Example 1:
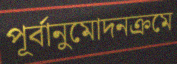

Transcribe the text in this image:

পূর্বানুমোদনক্রমে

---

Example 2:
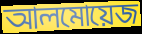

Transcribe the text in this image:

আলমোয়েজ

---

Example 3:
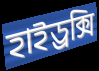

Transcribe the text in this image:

হাইড্রক্সি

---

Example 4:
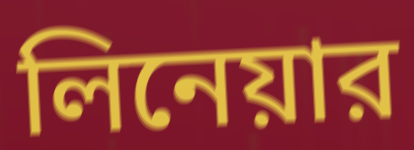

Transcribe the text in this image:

লিনেয়ার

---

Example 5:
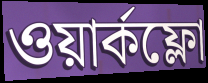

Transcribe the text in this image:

ওয়ার্কফ্লো